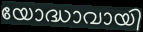
യോദ്ധാവായി